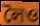
লৈও